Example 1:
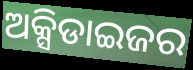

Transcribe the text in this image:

ଅକ୍ସିଡାଇଜର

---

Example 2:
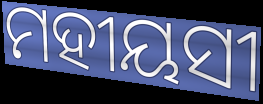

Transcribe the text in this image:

ମହୀୟସୀ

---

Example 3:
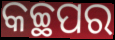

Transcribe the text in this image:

କଚ୍ଛପର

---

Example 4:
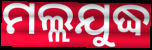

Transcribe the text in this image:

ମଲ୍ଲଯୁଦ୍ଧ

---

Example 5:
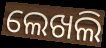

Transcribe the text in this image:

ଲେଖଲି